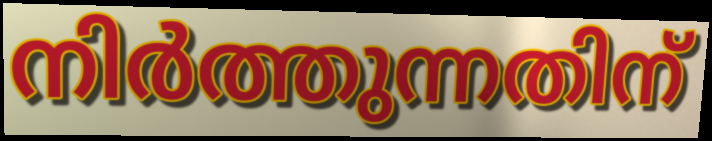
നിർത്തുന്നതിന്